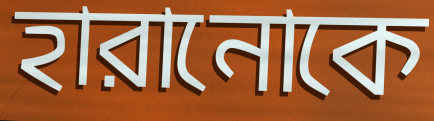
হারানোকে